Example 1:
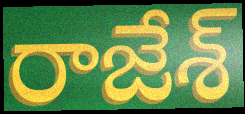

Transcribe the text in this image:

రాజేశ్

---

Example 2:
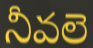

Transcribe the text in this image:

నీవలె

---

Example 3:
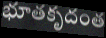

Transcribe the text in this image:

భూతకృదంత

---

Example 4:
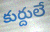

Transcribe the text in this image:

కుర్దులే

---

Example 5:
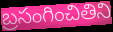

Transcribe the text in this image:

బ్రసంగించితిని